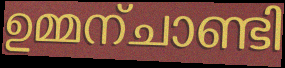
ഉമ്മന്ചാണ്ടി